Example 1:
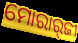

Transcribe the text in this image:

ମୋରାର୍‍ଜୀ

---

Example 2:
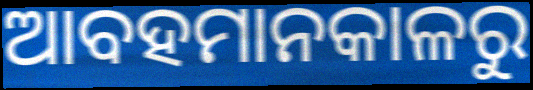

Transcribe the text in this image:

ଆବହମାନକାଳରୁ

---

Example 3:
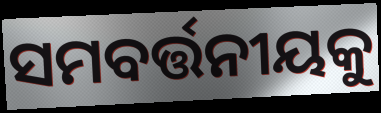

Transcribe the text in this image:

ସମବର୍ତ୍ତନୀୟକୁ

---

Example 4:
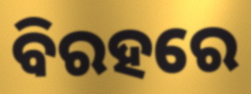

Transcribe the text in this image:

ବିରହରେ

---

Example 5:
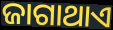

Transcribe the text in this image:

ଜାଗାଥାଏ